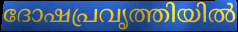
ദോഷപ്രവൃത്തിയിൽ